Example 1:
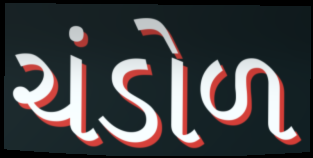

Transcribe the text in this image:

ચંડોળ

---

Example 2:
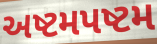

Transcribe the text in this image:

અષ્ટમપષ્ટમ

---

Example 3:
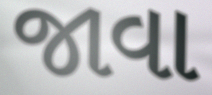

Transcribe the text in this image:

જાવા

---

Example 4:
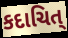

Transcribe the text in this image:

કદાચિત્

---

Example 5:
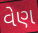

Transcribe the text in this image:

વેણ